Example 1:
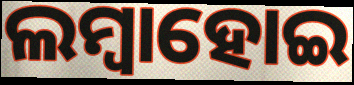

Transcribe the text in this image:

ଲମ୍ୱାହୋଇ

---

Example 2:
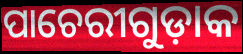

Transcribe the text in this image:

ପାଚେରୀଗୁଡ଼ାକ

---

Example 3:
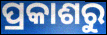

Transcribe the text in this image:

ପ୍ରକାଶରୁ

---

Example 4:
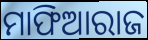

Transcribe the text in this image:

ମାଫିଆରାଜ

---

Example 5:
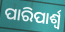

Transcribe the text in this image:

ପାରିପାର୍ଶ୍ୱ